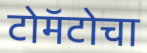
टोमॅटोचा